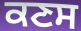
ਕਣਸ